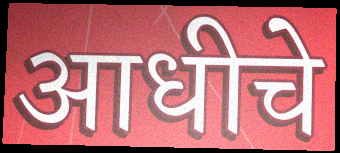
आधीचे